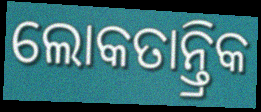
ଲୋକତାନ୍ତ୍ରିକ